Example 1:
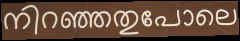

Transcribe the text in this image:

നിറഞ്ഞതുപോലെ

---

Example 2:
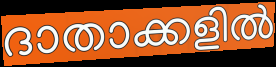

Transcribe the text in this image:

ദാതാക്കളിൽ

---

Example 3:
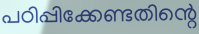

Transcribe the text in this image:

പഠിപ്പിക്കേണ്ടതിന്റെ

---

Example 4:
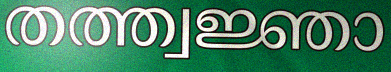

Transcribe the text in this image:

തത്ത്വജ്ഞാ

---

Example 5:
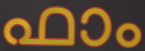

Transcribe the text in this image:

ഫാം